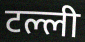
टल्ली